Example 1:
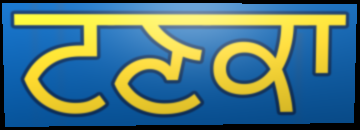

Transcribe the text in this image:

ਟਣਕਾ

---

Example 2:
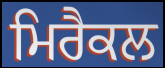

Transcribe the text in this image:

ਮਿਰੈਕਲ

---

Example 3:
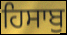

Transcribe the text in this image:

ਹਿਸਾਬੁ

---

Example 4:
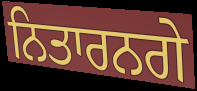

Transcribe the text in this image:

ਨਿਤਾਰਨਗੇ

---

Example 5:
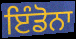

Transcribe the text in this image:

ਇੰਡੋਨਾ